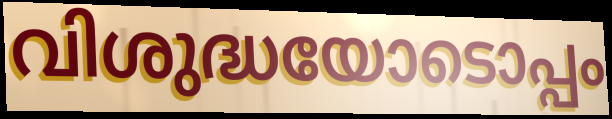
വിശുദ്ധയോടൊപ്പം